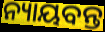
ନ୍ୟାୟବନ୍ତ